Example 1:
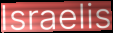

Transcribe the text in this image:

Israelis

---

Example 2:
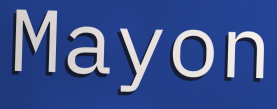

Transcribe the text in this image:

Mayon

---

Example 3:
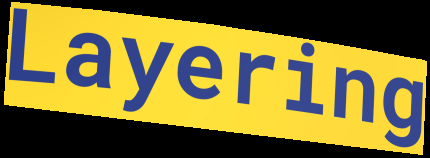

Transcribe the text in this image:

Layering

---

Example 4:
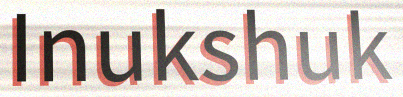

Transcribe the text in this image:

Inukshuk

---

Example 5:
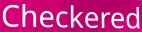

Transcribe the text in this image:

Checkered